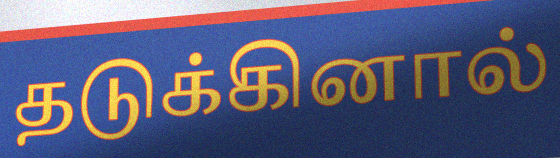
தடுக்கினால்